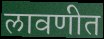
लावणीत